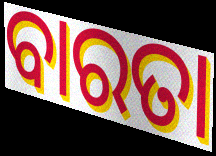
ବାରତା